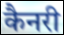
कैनरी